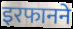
इरफानने